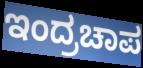
ಇಂದ್ರಚಾಪ